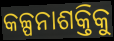
କଳ୍ପନାଶକ୍ତିକୁ